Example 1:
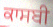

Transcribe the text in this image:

ਕਾਸਬੀ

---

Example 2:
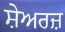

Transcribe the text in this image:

ਸ਼ੇਅਰਜ਼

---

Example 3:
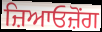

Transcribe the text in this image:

ਜ਼ਿਆਓਜ਼ੋਂਗ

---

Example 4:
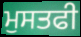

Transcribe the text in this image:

ਮੁਸਤਫੀ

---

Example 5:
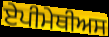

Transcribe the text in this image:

ਏਪੀਮੇਥੀਅਸ